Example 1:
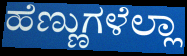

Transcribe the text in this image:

ಹೆಣ್ಣುಗಳೆಲ್ಲಾ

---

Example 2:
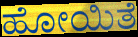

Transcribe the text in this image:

ಹೋಯಿತೆ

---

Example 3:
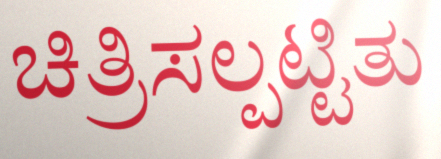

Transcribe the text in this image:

ಚಿತ್ರಿಸಲ್ಪಟ್ಟಿತು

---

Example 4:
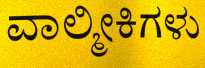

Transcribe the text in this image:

ವಾಲ್ಮೀಕಿಗಳು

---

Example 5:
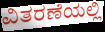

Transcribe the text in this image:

ವಿತರಣೆಯಲ್ಲಿ